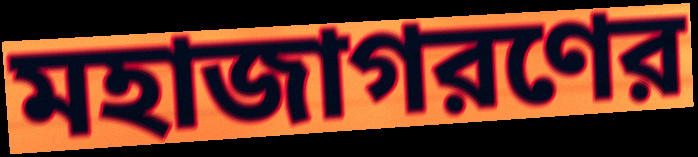
মহাজাগরণের